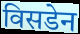
विसडेन